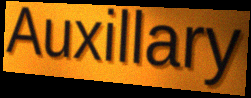
Auxillary